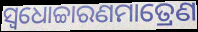
ସ୍ଵଧୋଚ୍ଚାରଣମାତ୍ରେଣ